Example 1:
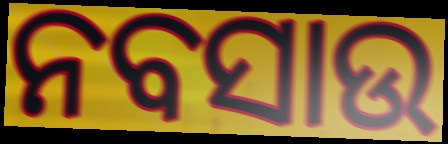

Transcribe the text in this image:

ନବସାଉ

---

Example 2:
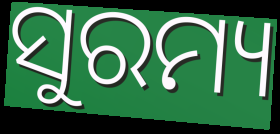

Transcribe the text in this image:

ସୁରମ୍ୟ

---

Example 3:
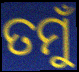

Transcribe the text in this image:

ତମୁଁ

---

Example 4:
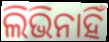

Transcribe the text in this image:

ଲିଭିନାହିଁ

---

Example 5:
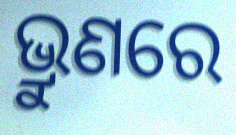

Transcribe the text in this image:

ଭ୍ରୁଣରେ